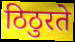
ठिठुरते